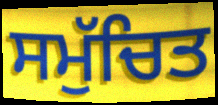
ਸਮੁੱਚਿਤ